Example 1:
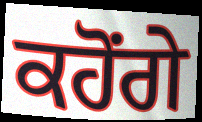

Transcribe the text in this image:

ਕਹੋਂਗੇ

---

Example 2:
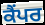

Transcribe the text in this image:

ਕੈਂਪਰ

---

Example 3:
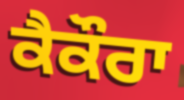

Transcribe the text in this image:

ਕੈਕੌਰਾ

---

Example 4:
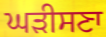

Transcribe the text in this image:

ਘੜੀਸਣਾ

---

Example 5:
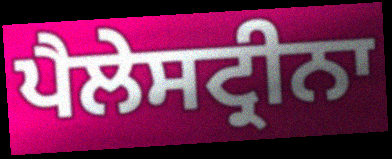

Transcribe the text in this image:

ਪੈਲੇਸਟ੍ਰੀਨਾ